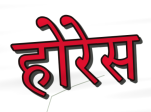
होरेस